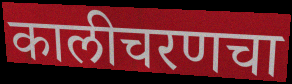
कालीचरणचा